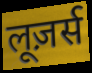
लूज़र्स